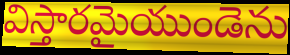
విస్తారమైయుండెను